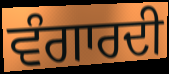
ਵੰਗਾਰਦੀ